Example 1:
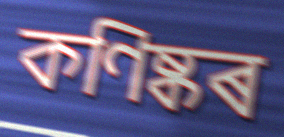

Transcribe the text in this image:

কণিষ্কৰ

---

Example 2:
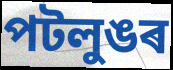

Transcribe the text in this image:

পটলুঙৰ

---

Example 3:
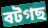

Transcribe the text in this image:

বটগছ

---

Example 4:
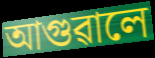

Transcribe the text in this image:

আগুৱালে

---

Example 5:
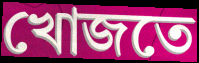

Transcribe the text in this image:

খোজতে